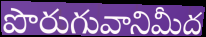
పొరుగువానిమీద